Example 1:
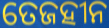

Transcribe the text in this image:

ତେଜହୀନ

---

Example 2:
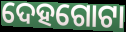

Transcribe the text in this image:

ଦେହଗୋଟା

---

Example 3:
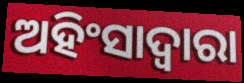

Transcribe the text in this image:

ଅହିଂସାଦ୍ୱାରା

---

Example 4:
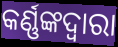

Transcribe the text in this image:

କର୍ଣ୍ଣଙ୍କଦ୍ୱାରା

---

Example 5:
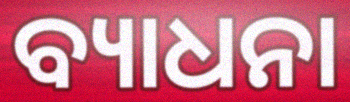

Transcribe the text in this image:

ବ୍ୟାଧନା